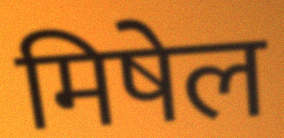
मिषेल